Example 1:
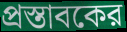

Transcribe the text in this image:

প্রস্তাবকের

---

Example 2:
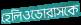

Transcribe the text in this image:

হেলিওডোরাসকে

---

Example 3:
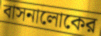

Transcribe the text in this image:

বাসনালোকের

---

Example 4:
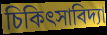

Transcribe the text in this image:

চিকিৎসাবিদ্যা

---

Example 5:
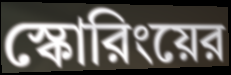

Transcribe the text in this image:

স্কোরিংয়ের